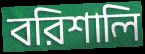
বরিশালি